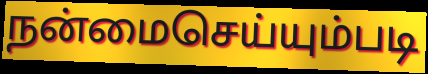
நன்மைசெய்யும்படி